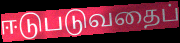
ஈடுபடுவதைப்